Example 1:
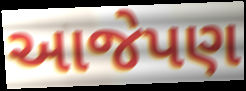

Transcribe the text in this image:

આજેપણ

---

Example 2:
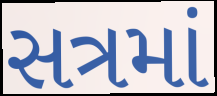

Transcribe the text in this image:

સત્રમાં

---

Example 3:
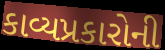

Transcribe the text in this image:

કાવ્યપ્રકારોની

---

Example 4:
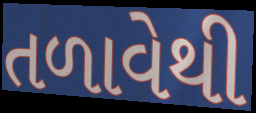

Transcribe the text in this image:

તળાવેથી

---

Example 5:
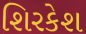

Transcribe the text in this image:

શિરકેશ